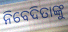
ନିବେଦିତାଙ୍କୁ